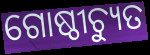
ଗୋଷ୍ଠୀଚ୍ୟୁତ